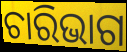
ଚାରିଭାଗ